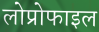
लोप्रोफाइल